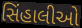
સિંહાલીઓ